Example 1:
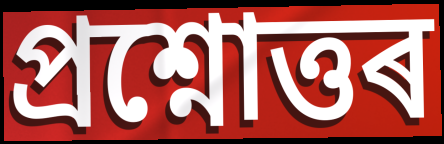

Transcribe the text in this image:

প্ৰশ্নোত্তৰ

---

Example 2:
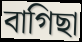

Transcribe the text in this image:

বাগিছা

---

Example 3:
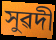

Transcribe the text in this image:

সুৱদী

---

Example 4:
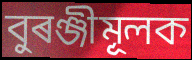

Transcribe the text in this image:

বুৰঞ্জীমূলক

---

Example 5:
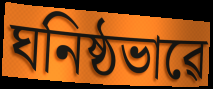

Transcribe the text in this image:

ঘনিষ্ঠভাৱে